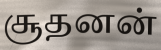
சூதனன்